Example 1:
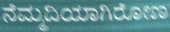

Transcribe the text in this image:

ನೆಮ್ಮದಿಯಾಗಿರೋಣ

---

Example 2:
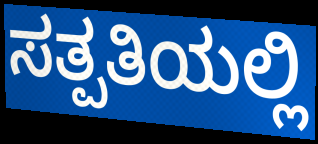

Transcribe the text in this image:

ಸತ್ಪತಿಯಲ್ಲಿ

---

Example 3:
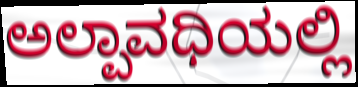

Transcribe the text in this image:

ಅಲ್ಪಾವಧಿಯಲ್ಲಿ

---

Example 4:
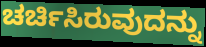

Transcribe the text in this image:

ಚರ್ಚಿಸಿರುವುದನ್ನು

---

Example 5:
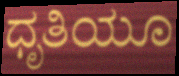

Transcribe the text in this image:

ಧೃತಿಯೂ